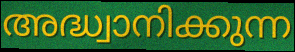
അദ്ധ്വാനിക്കുന്ന